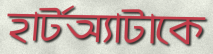
হার্টঅ্যাটাকে